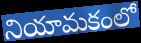
నియామకంలో